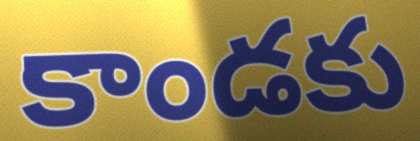
కాండకు